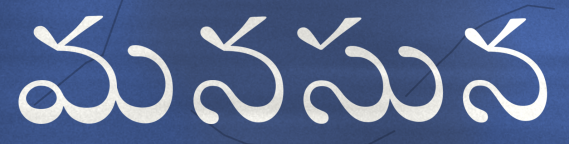
మనసున